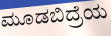
ಮೂಡಬಿದ್ರೆಯ